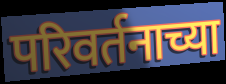
परिवर्तनाच्या